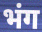
भंग